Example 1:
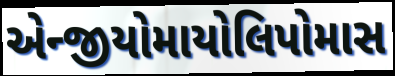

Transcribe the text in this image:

એન્જીયોમાયોલિપોમાસ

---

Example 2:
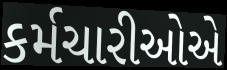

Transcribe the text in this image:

કર્મચારીઓએ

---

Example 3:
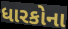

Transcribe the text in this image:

ધારકોના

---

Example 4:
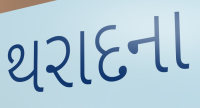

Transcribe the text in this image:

થરાદના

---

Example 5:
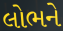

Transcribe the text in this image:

લોભને